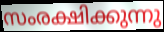
സംരക്ഷിക്കുന്നു